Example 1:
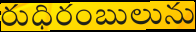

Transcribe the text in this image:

రుధిరంబులును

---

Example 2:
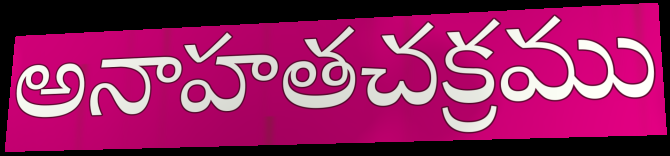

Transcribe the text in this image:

అనాహతచక్రము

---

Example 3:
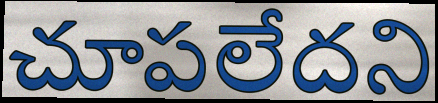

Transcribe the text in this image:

చూపలేదని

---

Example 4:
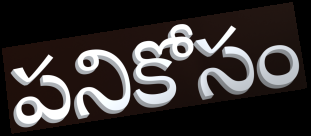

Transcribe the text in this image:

పనికోసం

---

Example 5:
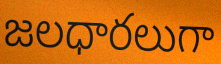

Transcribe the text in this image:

జలధారలుగా